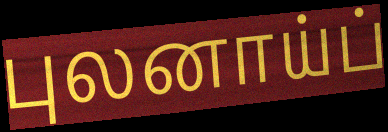
புலனாய்ப்